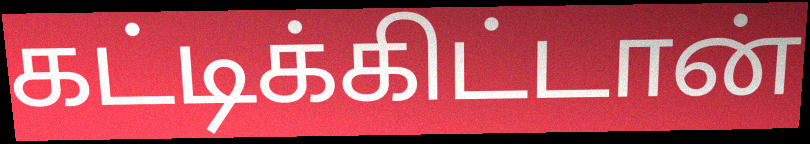
கட்டிக்கிட்டான்